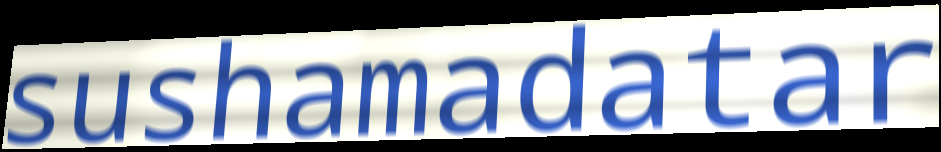
sushamadatar